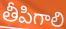
తీపిగాలి